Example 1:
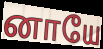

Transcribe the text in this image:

னாயே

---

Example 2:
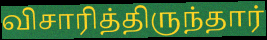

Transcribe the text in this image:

விசாரித்திருந்தார்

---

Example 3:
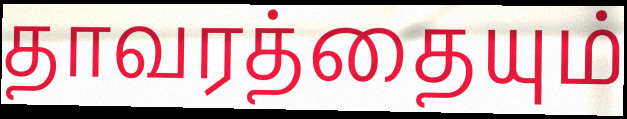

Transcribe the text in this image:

தாவரத்தையும்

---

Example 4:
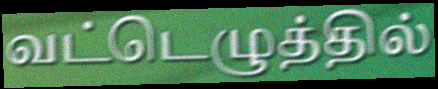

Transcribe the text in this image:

வட்டெழுத்தில்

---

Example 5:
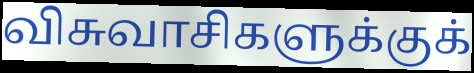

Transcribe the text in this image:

விசுவாசிகளுக்குக்